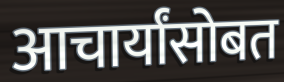
आचार्यांसोबत